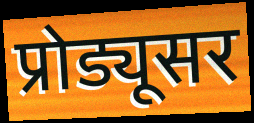
प्रोड्यूसर